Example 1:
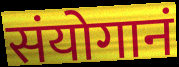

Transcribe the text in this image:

संयोगानं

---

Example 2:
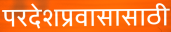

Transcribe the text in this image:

परदेशप्रवासासाठी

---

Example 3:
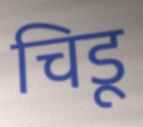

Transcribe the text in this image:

चिडू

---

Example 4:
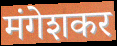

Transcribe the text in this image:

मंगेशकर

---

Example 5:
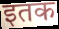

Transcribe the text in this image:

इतक